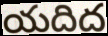
యదిద